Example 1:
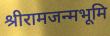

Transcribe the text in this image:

श्रीरामजन्मभूमि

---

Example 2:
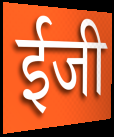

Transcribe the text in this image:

ईजी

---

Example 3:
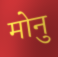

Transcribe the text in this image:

मोनु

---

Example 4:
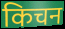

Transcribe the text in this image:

किचन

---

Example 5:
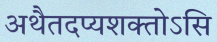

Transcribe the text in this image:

अथैतदप्यशक्तोऽसि